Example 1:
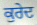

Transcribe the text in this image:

ਕੁਰੇਦ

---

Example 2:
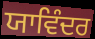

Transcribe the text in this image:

ਯਾਵਿੰਦਰ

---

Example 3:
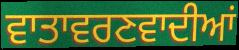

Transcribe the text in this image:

ਵਾਤਾਵਰਣਵਾਦੀਆਂ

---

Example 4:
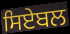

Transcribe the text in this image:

ਸਿਏਬਲ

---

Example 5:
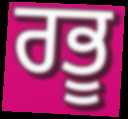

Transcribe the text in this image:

ਰਭੂ